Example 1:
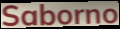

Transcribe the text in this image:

Saborno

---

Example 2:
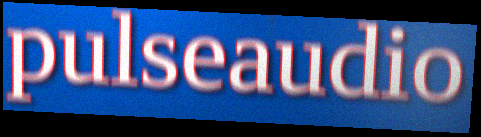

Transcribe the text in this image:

pulseaudio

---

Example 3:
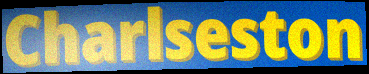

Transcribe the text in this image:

Charlseston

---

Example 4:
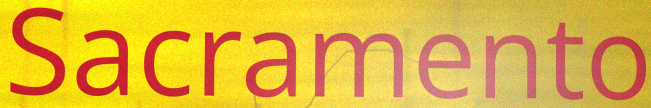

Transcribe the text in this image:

Sacramento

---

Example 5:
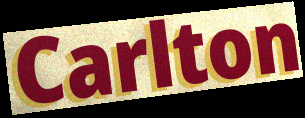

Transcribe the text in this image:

Carlton